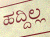
ಹದ್ದಿಲ್ಲ